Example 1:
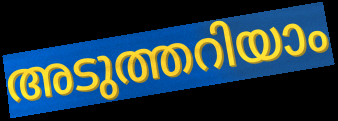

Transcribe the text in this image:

അടുത്തറിയാം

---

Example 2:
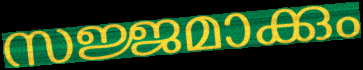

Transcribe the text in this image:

സജ്ജമാക്കും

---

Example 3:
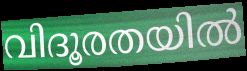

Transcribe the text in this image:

വിദൂരതയിൽ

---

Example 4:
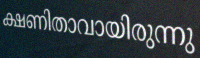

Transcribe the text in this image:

ക്ഷണിതാവായിരുന്നു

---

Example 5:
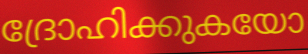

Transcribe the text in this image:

ദ്രോഹിക്കുകയോ